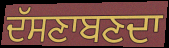
ਦੱਸਣਾਬਣਦਾ